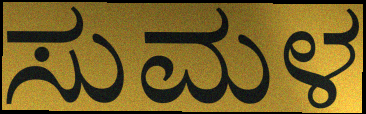
ಸುಮಳ